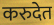
करुदेत